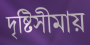
দৃষ্টিসীমায়